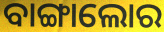
ବାଙ୍ଗାଲୋର